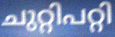
ചുറ്റിപറ്റി